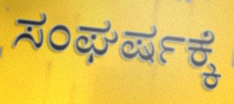
ಸಂಘರ್ಷಕ್ಕೆ